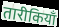
तारीकियाँ